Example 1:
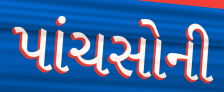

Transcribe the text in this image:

પાંચસોની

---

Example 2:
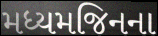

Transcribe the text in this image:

મધ્યમજિનના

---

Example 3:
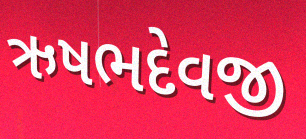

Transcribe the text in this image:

ઋષભદેવજી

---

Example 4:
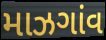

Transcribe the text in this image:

માઝગાંવ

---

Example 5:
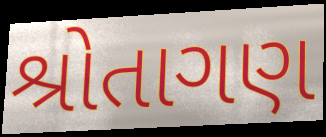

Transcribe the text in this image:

શ્રોતાગણ